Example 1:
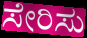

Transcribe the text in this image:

ಸೇರಿಸು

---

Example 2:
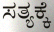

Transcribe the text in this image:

ಸತ್ಯಕ್ಕೆ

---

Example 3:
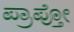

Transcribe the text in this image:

ಪ್ರಾಪ್ತೋ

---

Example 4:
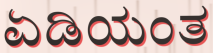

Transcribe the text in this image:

ಏಡಿಯಂತ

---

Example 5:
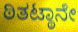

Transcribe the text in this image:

ಠಿತಟ್ಠಾನೇ